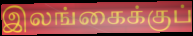
இலங்கைக்குப்